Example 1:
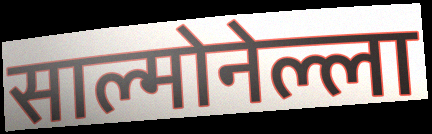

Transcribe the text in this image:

साल्मोनेल्ला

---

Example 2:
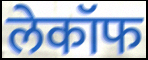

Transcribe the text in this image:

लेकॉफ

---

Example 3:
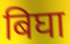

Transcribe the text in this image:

बिघा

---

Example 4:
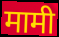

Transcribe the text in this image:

मामी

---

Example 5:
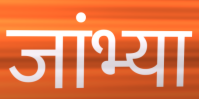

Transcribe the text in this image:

जांभ्या